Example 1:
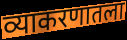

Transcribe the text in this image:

व्याकरणातला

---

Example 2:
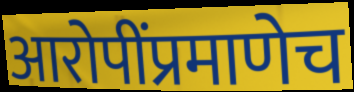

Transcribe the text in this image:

आरोपींप्रमाणेच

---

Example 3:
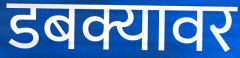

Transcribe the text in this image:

डबक्यावर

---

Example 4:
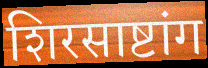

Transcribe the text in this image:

शिरसाष्टांग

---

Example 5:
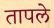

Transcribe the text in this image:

तापले